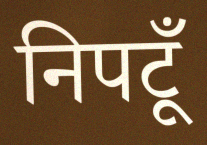
निपटूँ